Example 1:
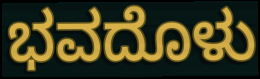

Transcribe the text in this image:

ಭವದೊಳು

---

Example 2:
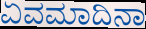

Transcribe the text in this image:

ಏವಮಾದಿನಾ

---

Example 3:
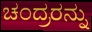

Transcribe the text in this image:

ಚಂದ್ರರನ್ನು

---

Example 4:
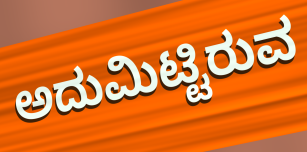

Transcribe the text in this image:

ಅದುಮಿಟ್ಟಿರುವ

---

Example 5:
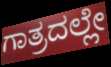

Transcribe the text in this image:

ಗಾತ್ರದಲ್ಲೇ